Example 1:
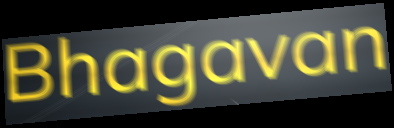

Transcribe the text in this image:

Bhagavan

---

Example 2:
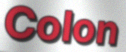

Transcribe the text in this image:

Colon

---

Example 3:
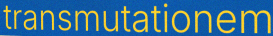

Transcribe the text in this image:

transmutationem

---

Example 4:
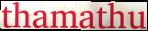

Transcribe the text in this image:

thamathu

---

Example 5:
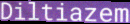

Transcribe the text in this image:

Diltiazem